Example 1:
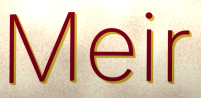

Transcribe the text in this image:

Meir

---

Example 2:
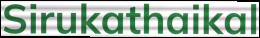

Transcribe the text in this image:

Sirukathaikal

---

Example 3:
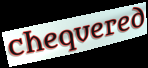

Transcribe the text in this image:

chequered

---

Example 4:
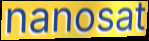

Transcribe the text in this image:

nanosat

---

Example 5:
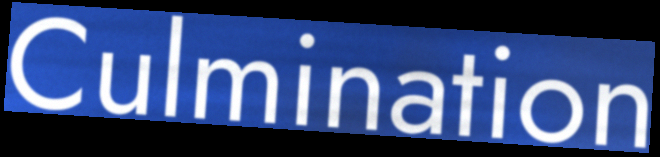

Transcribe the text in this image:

Culmination